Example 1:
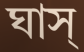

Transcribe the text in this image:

ঘাস্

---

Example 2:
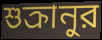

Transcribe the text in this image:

শুক্রানুর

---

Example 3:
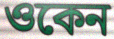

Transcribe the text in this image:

ওকেন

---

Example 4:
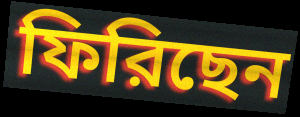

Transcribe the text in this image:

ফিরিছেন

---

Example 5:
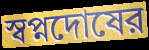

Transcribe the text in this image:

স্বপ্নদোষের